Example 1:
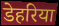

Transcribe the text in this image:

डेहरिया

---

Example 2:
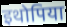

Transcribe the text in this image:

इथोपिया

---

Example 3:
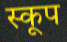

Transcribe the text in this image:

स्कूप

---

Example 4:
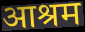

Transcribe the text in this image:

आश्रम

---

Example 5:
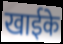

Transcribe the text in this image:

खाईके